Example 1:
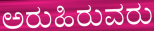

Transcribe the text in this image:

ಅರುಹಿರುವರು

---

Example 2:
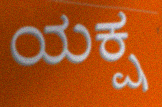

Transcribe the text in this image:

ಯಕ್ಷ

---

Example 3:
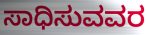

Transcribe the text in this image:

ಸಾಧಿಸುವವರ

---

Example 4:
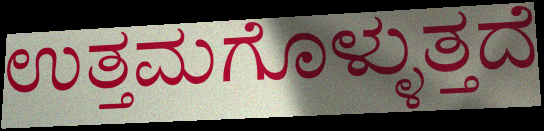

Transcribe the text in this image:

ಉತ್ತಮಗೊಳ್ಳುತ್ತದೆ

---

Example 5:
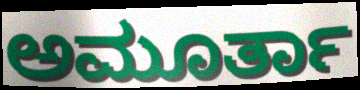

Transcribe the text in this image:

ಅಮೂರ್ತಾ